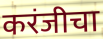
करंजीचा